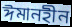
ঈমানহীন